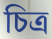
চিত্ৰ